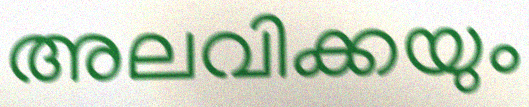
അലവിക്കയും